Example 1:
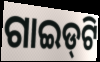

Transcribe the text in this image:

ଗାଇଡ୍‌ଟି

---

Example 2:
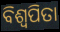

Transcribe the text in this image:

ବିଶ୍ୱପିତା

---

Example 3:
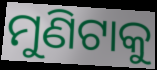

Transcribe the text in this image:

ମୁଣିଟାକୁ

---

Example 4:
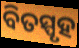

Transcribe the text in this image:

ବିତସ୍ପୃହ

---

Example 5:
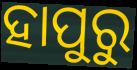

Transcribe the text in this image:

ହାପୁରୁ